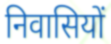
निवासियों